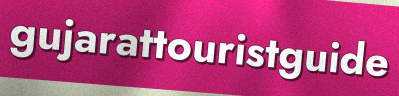
gujarattouristguide